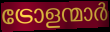
ട്രോളന്മാർ